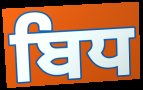
ਬਿਧ